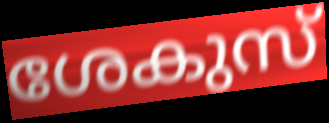
ശേകുസ്